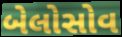
બેલોસોવ